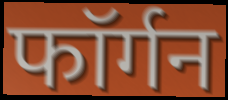
फॉर्गन